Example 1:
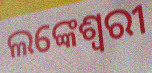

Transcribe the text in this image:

ଲଙ୍କେଶ୍ୱରୀ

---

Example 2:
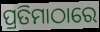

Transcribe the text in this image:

ପ୍ରତିମାଠାରେ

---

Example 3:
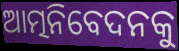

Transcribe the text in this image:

ଆତ୍ମନିବେଦନକୁ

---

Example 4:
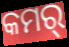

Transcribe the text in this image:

କମର୍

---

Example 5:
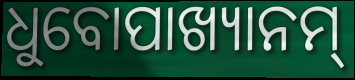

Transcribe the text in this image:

ଧୁବୋପାଖ୍ୟାନମ୍